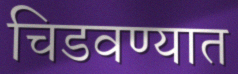
चिडवण्यात